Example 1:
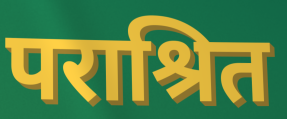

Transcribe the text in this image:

पराश्रित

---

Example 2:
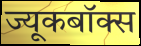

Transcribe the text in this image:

ज्यूकबॉक्स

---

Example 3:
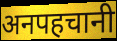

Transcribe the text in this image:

अनपहचानी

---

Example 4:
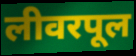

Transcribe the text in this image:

लीवरपूल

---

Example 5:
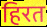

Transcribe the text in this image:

हिरत